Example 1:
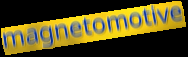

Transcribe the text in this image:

magnetomotive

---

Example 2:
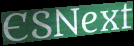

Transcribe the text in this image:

ESNext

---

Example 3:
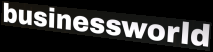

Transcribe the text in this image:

businessworld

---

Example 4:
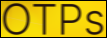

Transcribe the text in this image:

OTPs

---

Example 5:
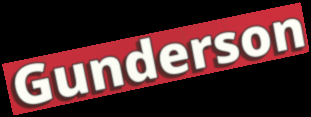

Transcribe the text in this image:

Gunderson